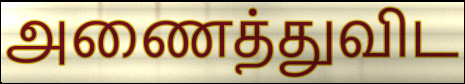
அணைத்துவிட